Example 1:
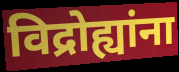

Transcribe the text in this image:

विद्रोह्यांना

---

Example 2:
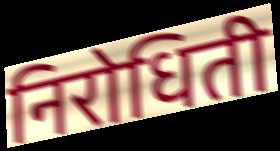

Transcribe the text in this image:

निरोधिती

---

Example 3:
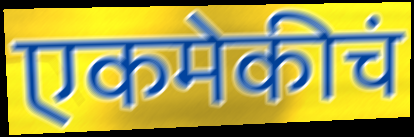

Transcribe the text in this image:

एकमेकीचं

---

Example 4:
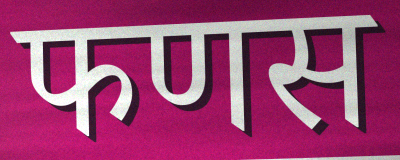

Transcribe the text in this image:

फणस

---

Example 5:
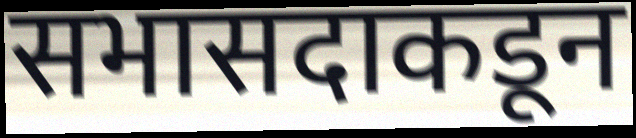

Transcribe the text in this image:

सभासदाकडून